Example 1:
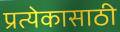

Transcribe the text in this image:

प्रत्येकासाठी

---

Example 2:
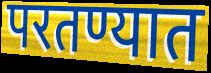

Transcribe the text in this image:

परतण्यात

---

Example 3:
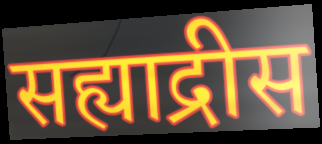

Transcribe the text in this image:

सह्याद्रीस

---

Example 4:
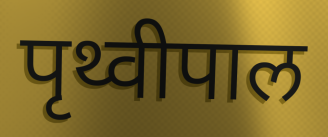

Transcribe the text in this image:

पृथ्वीपाल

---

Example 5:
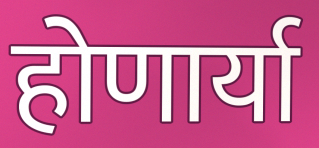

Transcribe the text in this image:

होणार्या